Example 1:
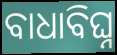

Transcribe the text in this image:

ବାଧାବିଘ୍ନ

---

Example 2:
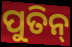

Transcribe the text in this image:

ପୁତିନ୍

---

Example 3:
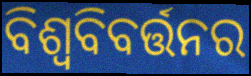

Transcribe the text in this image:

ବିଶ୍ଵବିବର୍ତ୍ତନର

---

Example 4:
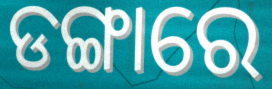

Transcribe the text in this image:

ଡଙ୍ଗାରେ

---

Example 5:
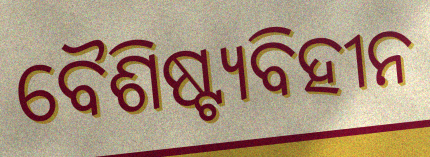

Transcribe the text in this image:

ବୈଶିଷ୍ଟ୍ୟବିହୀନ